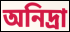
অনিদ্রা